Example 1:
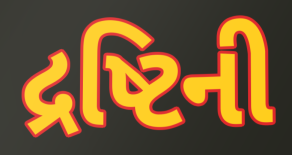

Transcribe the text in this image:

દ્રષ્ટિની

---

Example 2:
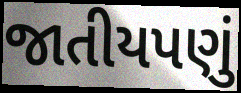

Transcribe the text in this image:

જાતીયપણું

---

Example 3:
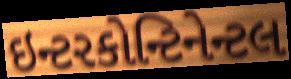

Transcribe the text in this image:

ઇન્ટરકોન્ટિનેન્ટલ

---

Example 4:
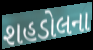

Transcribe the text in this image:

શહડોલના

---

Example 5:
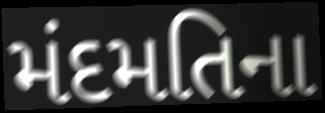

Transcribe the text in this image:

મંદમતિના